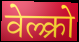
वेल्क्रो